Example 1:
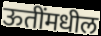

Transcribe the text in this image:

ऊतींमधील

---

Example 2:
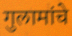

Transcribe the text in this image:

गुलामांचे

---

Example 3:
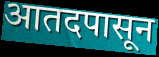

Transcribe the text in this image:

आतदपासून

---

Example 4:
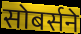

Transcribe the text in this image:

सोबर्सने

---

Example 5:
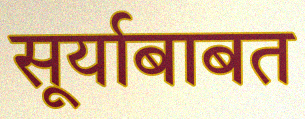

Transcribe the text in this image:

सूर्याबाबत